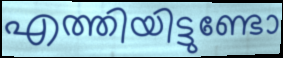
എത്തിയിട്ടുണ്ടോ